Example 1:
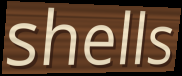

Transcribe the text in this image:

shells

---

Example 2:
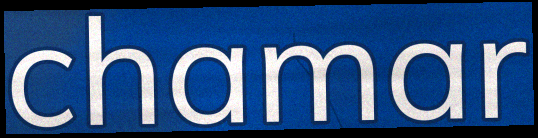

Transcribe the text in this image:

chamar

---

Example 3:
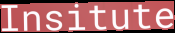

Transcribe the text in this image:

Insitute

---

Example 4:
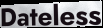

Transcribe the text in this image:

Dateless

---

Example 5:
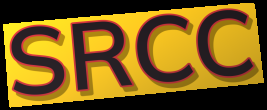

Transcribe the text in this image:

SRCC